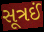
સૂત્રઈં